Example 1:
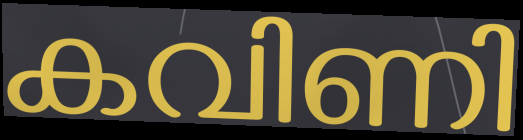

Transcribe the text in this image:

കവിണി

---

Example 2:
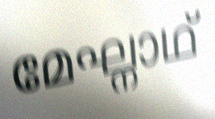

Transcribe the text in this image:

മേഘ്നാഥ്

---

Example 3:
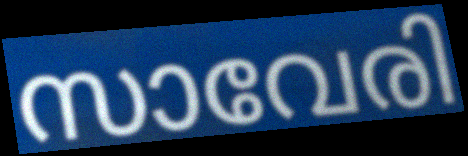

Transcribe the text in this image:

സാവേരി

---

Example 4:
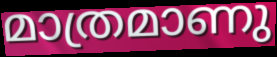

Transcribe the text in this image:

മാത്രമാണു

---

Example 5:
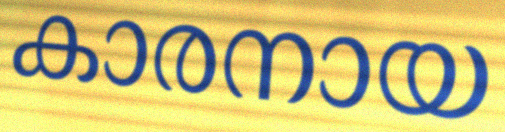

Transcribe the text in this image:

കാരനായ